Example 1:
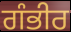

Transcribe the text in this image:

ਗੰਭੀਰ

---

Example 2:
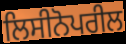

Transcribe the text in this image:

ਲਿਸੀਨੋਪਰੀਲ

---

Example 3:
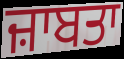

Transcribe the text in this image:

ਜ਼ਾਬਤਾ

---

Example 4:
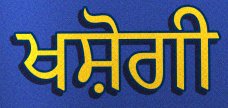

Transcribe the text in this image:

ਖਸ਼ੋਗੀ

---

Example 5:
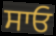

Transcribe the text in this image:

ਸਾਓ